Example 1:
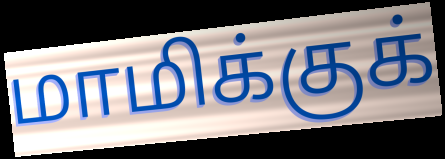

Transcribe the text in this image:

மாமிக்குக்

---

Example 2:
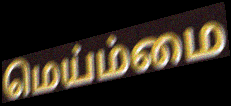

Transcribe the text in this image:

மெய்ம்மை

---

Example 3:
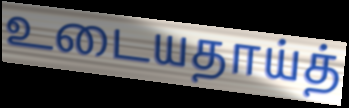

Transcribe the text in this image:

உடையதாய்த்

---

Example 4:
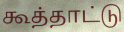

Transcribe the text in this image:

கூத்தாட்டு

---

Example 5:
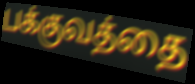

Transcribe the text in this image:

பக்குவத்தை